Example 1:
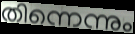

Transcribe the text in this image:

തിന്നെന്നും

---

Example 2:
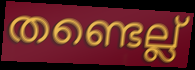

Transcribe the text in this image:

തണ്ടെല്ല്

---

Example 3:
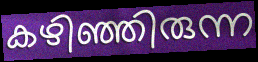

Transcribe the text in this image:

കഴിഞ്ഞിരുന്ന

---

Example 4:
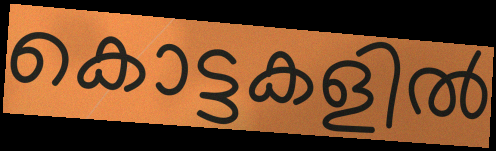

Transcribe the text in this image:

കൊട്ടകളിൽ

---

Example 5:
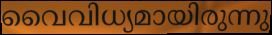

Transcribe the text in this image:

വൈവിധ്യമായിരുന്നു